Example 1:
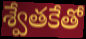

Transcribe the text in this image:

శ్వేతకేతో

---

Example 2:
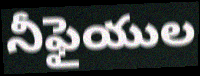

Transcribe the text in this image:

నీఫైయుల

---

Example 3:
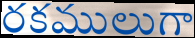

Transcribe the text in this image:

రకములుగా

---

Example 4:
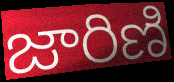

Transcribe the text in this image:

జారిణి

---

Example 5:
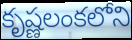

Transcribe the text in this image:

కృష్ణలంకలోని